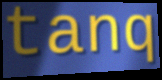
tanq